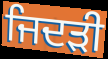
ਜਿਦੜੀ